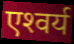
एश्‍वर्य